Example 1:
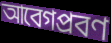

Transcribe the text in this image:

আবেগপ্রবণ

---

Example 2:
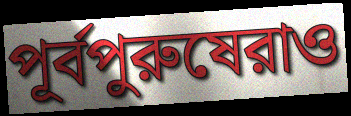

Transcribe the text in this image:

পূর্বপুরুষেরাও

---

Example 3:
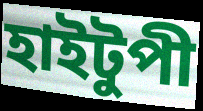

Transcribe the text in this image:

হাইটুপী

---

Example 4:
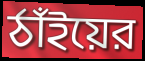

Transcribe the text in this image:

ঠাঁইয়ের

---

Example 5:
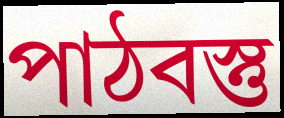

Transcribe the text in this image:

পাঠবস্তু